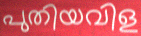
പുതിയവിള